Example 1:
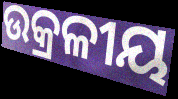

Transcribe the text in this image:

ଉକ୍ରଳୀୟ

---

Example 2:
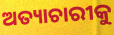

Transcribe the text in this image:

ଅତ୍ୟାଚାରୀକୁ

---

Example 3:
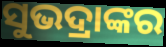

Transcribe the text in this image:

ସୁଭଦ୍ରାଙ୍କର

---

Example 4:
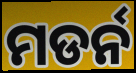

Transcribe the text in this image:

ମଡର୍ନ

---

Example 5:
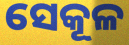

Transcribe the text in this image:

ସେକୂଳ